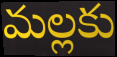
మల్లకు